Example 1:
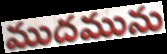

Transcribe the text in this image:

ముదమును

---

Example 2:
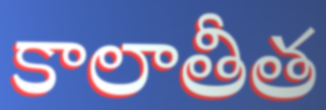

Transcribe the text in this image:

కాలాతీత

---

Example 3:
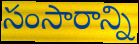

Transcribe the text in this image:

సంసారాన్ని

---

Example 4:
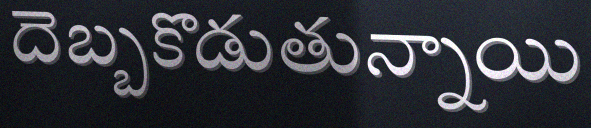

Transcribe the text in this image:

దెబ్బకొడుతున్నాయి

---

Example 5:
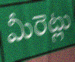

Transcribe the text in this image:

మీరెట్లు